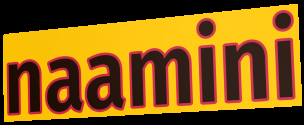
naamini